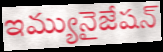
ఇమ్యునైజేషన్